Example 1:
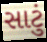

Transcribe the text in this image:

સાટું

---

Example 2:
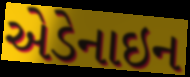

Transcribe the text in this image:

એડેનાઇન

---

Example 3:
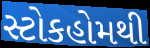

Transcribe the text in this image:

સ્ટોકહોમથી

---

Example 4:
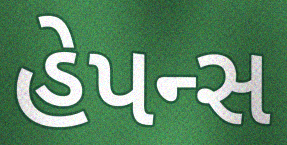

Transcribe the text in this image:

હેપન્સ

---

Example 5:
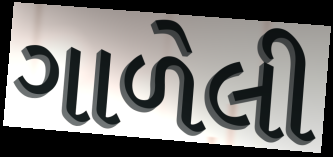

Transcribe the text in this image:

ગાળેલી